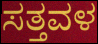
ಸತ್ತವಳ